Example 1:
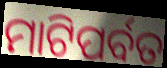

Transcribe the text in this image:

ମାଟିପର୍ବତ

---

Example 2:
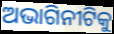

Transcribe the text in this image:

ଅଭାଗିନୀଟିକୁ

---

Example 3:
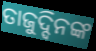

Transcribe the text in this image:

ତାଜୁଦ୍ଦିନଙ୍କ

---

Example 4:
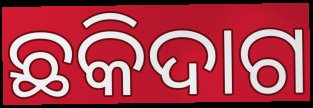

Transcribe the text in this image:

ଛକିଦାଗ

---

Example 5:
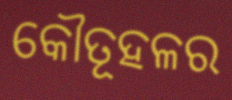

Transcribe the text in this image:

କୌତୂହଳର